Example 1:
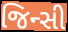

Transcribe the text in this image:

જિન્સી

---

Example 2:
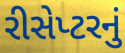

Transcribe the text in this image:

રીસેપ્ટરનું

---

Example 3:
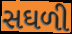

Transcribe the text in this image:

સઘળી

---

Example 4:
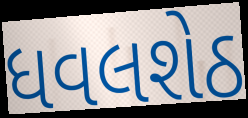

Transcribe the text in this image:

ધવલશેઠ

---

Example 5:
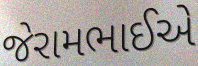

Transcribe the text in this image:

જેરામભાઈએ